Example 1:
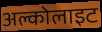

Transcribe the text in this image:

अल्कोलाइट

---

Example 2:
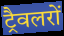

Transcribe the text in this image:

ट्रैवलरों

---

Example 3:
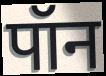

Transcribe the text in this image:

पॉन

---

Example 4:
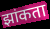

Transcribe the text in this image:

झांकता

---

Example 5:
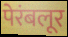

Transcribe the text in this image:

पेरंबलूर